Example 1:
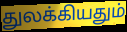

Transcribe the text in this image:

துலக்கியதும்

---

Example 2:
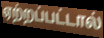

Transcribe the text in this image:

ஏற்றப்பட்டால்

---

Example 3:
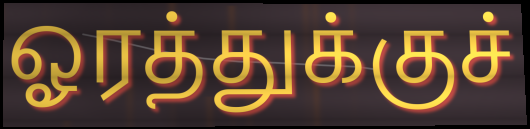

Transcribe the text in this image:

ஓரத்துக்குச்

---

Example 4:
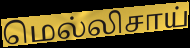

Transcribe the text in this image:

மெல்லிசாய்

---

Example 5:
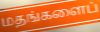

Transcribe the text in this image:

மதங்களைப்